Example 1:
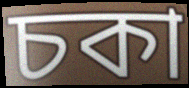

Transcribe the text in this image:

চকা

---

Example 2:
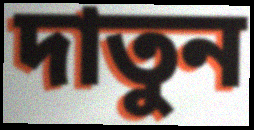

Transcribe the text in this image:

দাতুন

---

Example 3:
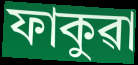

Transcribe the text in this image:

ফাকুৱা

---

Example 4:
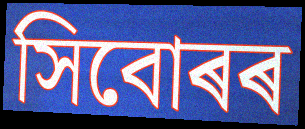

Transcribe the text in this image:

সিবোৰৰ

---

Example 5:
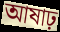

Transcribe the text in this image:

আষাঢ়